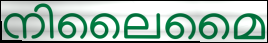
നിലൈമൈ